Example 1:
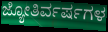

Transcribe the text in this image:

ಜ್ಯೋತಿರ್ವರ್ಷಗಳ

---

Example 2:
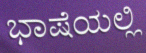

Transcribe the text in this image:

ಭಾಷೆಯಲ್ಲಿ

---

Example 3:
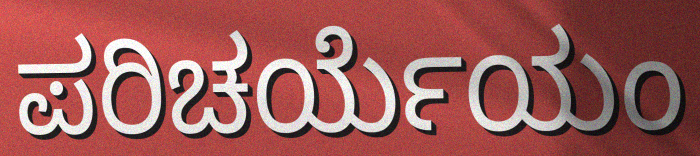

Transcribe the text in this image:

ಪರಿಚರ್ಯೆಯಂ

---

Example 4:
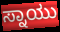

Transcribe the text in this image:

ಸ್ನಾಯು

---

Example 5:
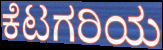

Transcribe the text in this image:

ಕೆಟಗರಿಯ